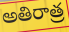
అతిరాత్ర